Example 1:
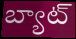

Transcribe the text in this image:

బ్యాట్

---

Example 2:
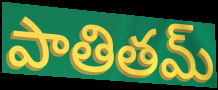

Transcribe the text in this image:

పాతితమ్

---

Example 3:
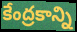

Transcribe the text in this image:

కేంద్రకాన్ని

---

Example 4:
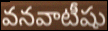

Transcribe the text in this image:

వనవాటీషు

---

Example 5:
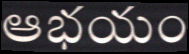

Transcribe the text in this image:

ఆభయం